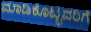
ಮಾಡಿಕೊಟ್ಟವರಿಗೆ